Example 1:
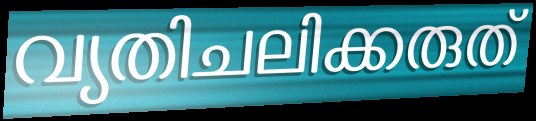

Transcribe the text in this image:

വ്യതിചലിക്കരുത്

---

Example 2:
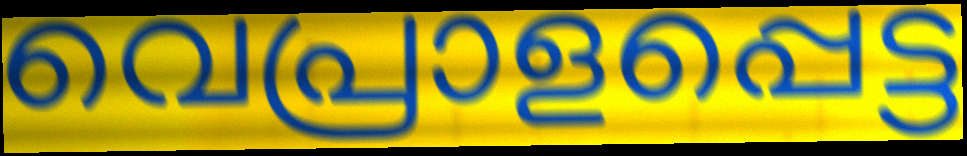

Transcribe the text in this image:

വെപ്രാളപ്പെട്ട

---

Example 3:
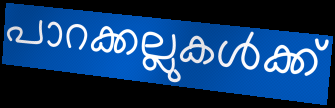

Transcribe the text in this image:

പാറക്കല്ലുകൾക്ക്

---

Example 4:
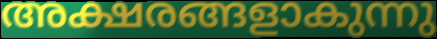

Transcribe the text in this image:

അക്ഷരങ്ങളാകുന്നു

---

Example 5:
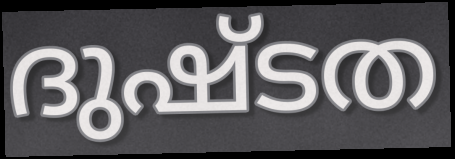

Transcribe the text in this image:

ദുഷ്ടത